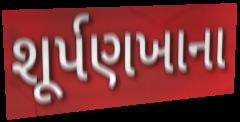
શૂર્પણખાના